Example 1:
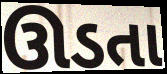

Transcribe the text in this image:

ઊડતા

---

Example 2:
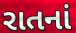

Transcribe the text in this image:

રાતનાં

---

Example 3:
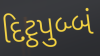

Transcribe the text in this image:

દિટ્ઠપુબ્બં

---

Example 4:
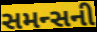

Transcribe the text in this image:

સમન્સની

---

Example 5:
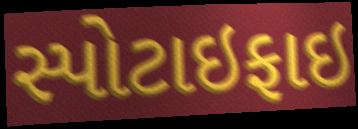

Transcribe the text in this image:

સ્પોટાઇફાઇ